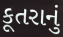
કૂતરાનું